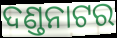
ଦଣ୍ଡନାଟର